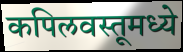
कपिलवस्तूमध्ये